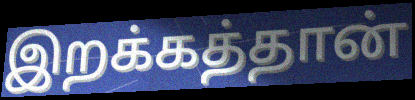
இறக்கத்தான்